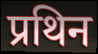
प्रथिन